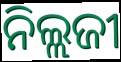
ନିଲ୍ଲଜୀ